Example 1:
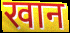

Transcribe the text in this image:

खान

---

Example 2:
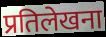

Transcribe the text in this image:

प्रतिलेखना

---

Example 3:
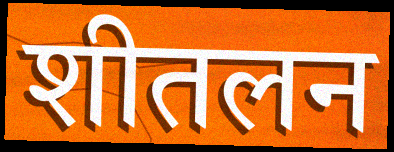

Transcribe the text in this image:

शीतलन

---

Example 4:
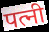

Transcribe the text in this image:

पत्‍नी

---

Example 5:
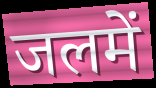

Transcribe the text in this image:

जलमें